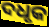
ଦଧୃକ